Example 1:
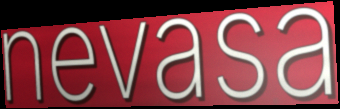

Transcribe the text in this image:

nevasa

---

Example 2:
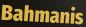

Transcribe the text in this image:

Bahmanis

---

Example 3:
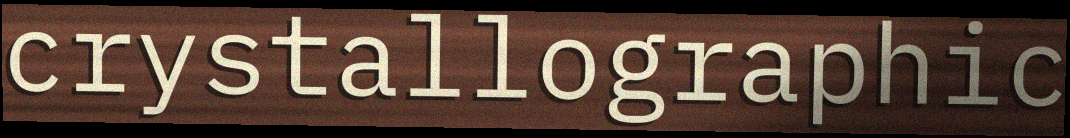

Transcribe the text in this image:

crystallographic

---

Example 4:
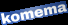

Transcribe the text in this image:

komema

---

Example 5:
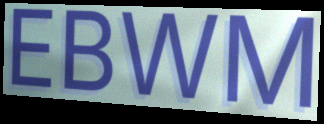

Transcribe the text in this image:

EBWM